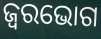
ଜ୍ୱରଭୋଗ